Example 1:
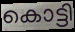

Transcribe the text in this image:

കൊട്ടി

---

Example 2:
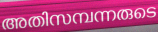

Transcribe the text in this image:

അതിസമ്പന്നരുടെ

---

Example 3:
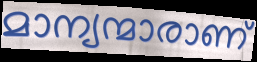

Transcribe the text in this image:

മാന്യന്മാരാണ്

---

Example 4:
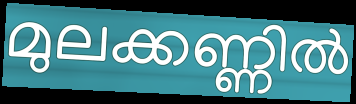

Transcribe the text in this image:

മുലക്കണ്ണിൽ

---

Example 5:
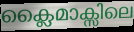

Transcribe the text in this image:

ക്ലൈമാക്സിലെ